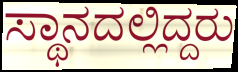
ಸ್ಥಾನದಲ್ಲಿದ್ದರು